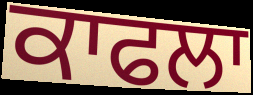
ਕਾਫਲਾ